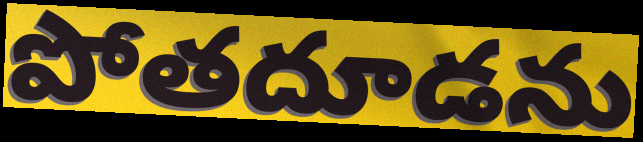
పోతదూడను